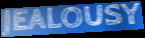
JEALOUSY